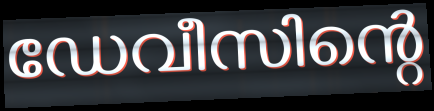
ഡേവീസിന്റെ